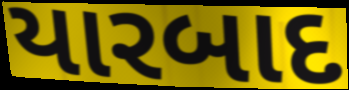
યારબાદ